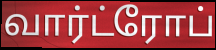
வார்ட்ரோப்